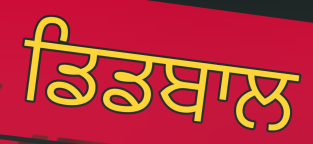
ਡਿਡਬਾਲ